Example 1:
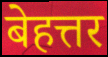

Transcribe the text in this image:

बेहत्तर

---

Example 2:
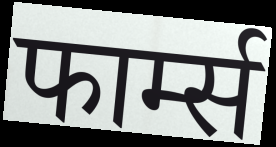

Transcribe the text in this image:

फार्म्स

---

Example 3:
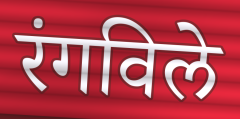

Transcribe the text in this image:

रंगविले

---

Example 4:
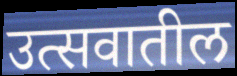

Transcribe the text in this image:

उत्सवातील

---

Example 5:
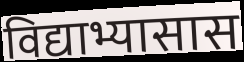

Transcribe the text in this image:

विद्याभ्यासास